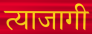
त्याजागी